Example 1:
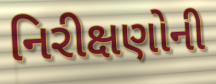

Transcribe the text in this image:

નિરીક્ષણોની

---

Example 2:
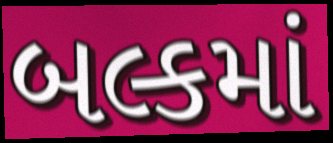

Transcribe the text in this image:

બલ્કમાં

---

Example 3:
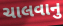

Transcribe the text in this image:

ચાલવાનુ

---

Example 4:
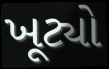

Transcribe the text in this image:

ખૂટ્યો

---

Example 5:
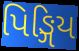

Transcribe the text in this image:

પિઙ્ગિય